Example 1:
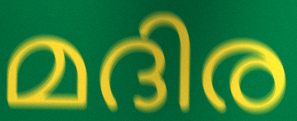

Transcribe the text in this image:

മദിര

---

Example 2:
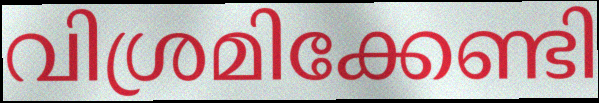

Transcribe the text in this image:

വിശ്രമിക്കേണ്ടി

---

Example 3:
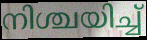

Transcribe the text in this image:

നിശ്ചയിച്ച്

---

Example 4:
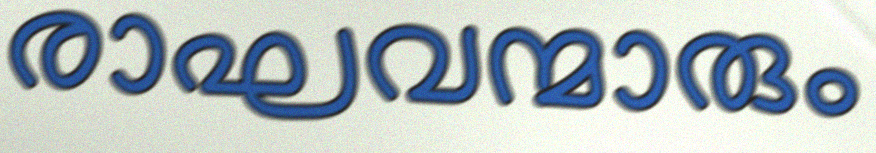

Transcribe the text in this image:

രാഘവന്മാരും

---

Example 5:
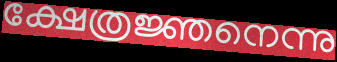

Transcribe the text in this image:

ക്ഷേത്രജ്ഞനെന്നു